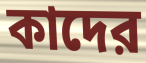
কাদের